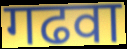
गढवा